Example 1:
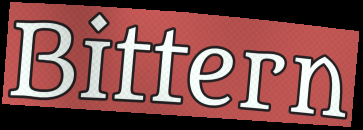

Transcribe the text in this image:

Bittern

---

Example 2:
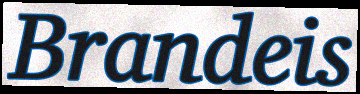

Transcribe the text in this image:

Brandeis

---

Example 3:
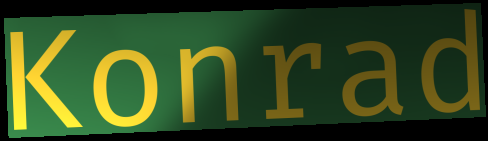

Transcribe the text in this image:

Konrad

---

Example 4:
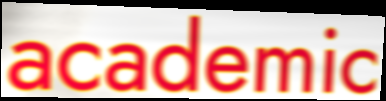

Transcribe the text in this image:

academic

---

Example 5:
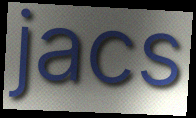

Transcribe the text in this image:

jacs